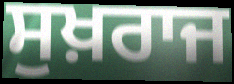
ਸੁਖ਼ਰਾਜ